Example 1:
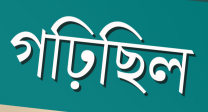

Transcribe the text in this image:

গঢ়িছিল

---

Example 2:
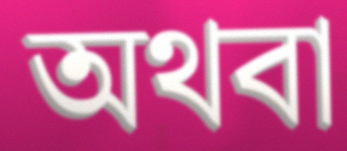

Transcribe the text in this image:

অথবা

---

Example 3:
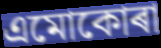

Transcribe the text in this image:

এমোকোৰা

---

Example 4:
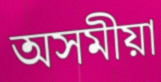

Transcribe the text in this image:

অসমীয়া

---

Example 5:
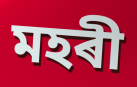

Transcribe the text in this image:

মহৰী